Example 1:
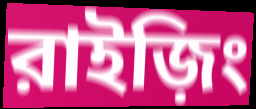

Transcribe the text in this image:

রাইজ়িং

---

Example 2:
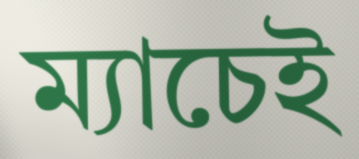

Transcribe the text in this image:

ম্যাচেই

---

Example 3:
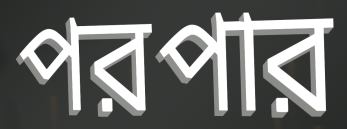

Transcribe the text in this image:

পরপার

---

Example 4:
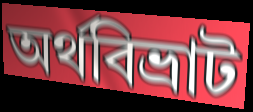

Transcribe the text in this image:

অর্থবিভ্রাট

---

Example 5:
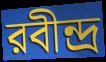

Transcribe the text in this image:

রবীন্দ্র